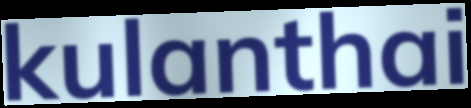
kulanthai